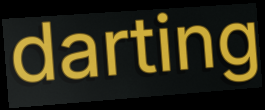
darting